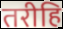
तरीहि